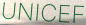
UNICEF